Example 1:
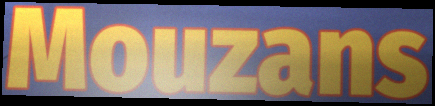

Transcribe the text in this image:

Mouzans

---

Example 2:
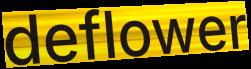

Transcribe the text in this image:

deflower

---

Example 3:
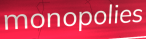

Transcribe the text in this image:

monopolies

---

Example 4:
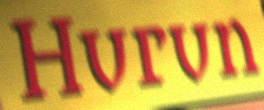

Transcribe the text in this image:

Hurun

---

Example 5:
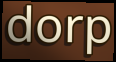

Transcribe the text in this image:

dorp